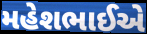
મહેશભાઈએ